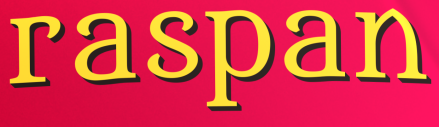
raspan